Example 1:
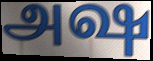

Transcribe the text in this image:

அஷ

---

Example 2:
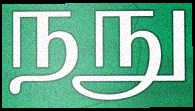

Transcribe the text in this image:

நநு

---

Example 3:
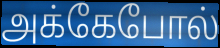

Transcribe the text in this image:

அக்கேபோல்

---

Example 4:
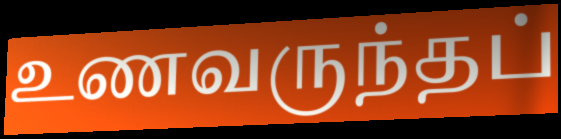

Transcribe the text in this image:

உணவருந்தப்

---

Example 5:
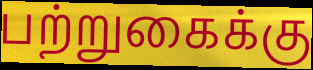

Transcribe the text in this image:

பற்றுகைக்கு